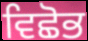
ਵਿਛੋਭ